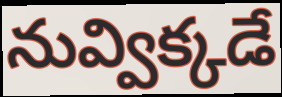
నువ్విక్కడే